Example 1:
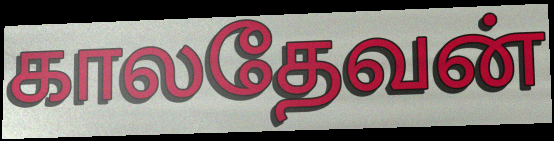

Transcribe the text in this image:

காலதேவன்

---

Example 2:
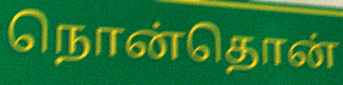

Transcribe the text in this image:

நொன்தொன்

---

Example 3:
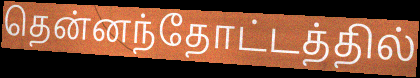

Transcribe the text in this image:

தென்னந்தோட்டத்தில்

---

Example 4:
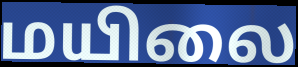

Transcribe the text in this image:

மயிலை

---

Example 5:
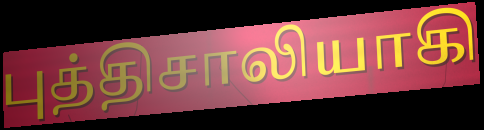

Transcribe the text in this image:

புத்திசாலியாகி